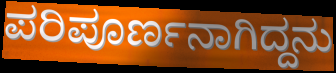
ಪರಿಪೂರ್ಣನಾಗಿದ್ದನು